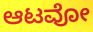
ಆಟವೋ